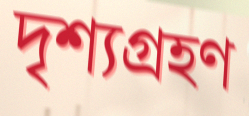
দৃশ্যগ্ৰহণ